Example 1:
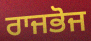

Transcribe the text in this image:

ਰਾਜਭੋਜ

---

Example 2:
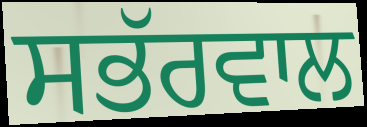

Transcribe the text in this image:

ਸਭੱਰਵਾਲ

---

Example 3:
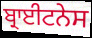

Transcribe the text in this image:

ਬ੍ਰਾਈਟਨੇਸ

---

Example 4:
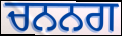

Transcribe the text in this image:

ਚਨਨਗ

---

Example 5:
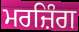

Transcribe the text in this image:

ਮਰਜ਼ਿੰਗ